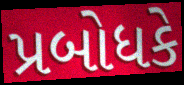
પ્રબોધકે